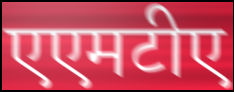
एएमटीए